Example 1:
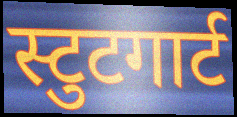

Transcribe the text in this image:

स्टुटगार्ट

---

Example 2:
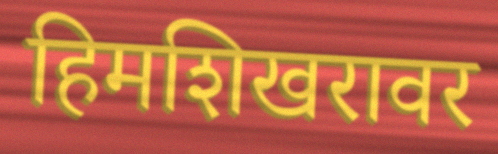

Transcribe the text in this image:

हिमशिखरावर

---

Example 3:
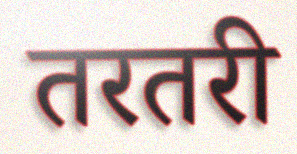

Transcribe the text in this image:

तरतरी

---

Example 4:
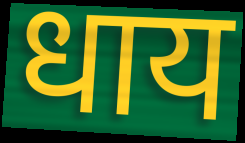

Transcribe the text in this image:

धाय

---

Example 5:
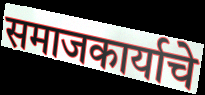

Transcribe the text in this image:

समाजकार्याचे